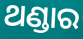
ଥଣ୍ଡାର